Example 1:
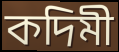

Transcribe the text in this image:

কদিমী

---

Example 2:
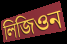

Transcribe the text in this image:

লিজিওন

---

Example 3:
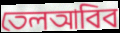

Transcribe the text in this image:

তেলআবিব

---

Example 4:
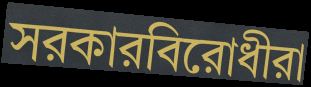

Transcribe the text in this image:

সরকারবিরোধীরা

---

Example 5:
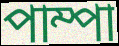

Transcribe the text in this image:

পাম্পা